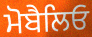
ਮੋਬੈਲਿਓ